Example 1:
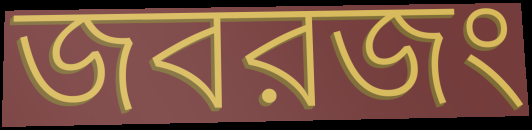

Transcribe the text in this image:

জবরজং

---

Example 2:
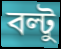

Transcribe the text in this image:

বল্টু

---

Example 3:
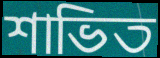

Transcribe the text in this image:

শাভিত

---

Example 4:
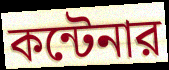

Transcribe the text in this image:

কন্টেনার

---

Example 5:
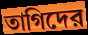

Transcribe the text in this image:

তাগিদের